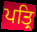
ਪਤ੍ਰਿ